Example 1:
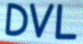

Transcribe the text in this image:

DVL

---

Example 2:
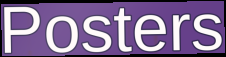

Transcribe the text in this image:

Posters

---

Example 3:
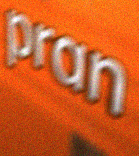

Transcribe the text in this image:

pran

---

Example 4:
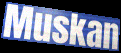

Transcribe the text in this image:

Muskan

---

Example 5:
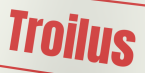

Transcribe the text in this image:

Troilus